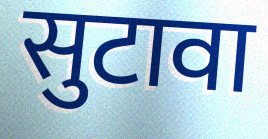
सुटावा